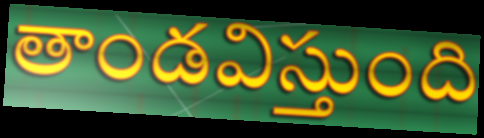
తాండవిస్తుంది